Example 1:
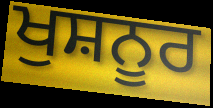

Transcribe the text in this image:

ਖੁਸ਼ਨੂਰ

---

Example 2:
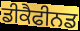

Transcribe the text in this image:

ਡੀਕੈਫੀਨਡ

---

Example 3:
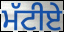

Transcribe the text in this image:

ਮੱਟੀਏ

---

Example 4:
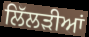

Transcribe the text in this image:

ਲਿੱਲੜੀਆਂ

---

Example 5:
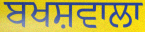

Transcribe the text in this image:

ਬਖਸ਼ਵਾਲਾ